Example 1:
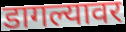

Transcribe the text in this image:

डागल्यावर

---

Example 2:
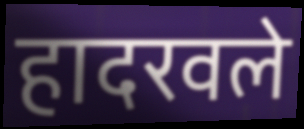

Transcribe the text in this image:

हादरवले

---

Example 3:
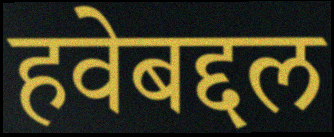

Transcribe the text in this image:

हवेबद्दल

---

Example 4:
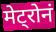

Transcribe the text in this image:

मेट्रोनं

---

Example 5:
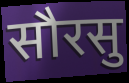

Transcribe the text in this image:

सौरसु